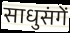
साधुसंगें